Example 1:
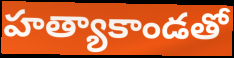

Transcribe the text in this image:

హత్యాకాండతో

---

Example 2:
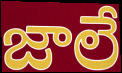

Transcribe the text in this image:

జాలే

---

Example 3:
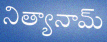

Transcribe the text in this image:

నిత్యానామ్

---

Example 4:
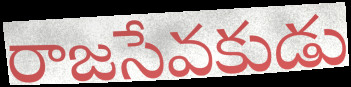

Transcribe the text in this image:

రాజసేవకుడు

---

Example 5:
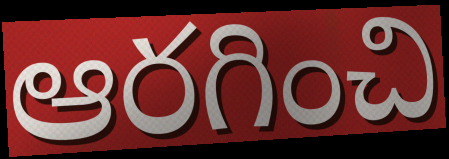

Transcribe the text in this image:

ఆరగించి